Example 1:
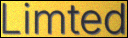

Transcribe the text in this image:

Limted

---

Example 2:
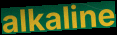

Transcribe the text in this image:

alkaline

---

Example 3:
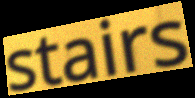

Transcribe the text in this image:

stairs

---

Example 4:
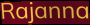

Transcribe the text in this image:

Rajanna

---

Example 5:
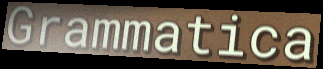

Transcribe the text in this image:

Grammatica